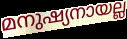
മനുഷ്യനായല്ല